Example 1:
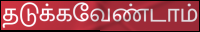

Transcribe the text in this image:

தடுக்கவேண்டாம்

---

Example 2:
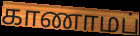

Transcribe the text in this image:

காணாமப்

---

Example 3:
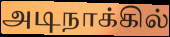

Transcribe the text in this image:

அடிநாக்கில்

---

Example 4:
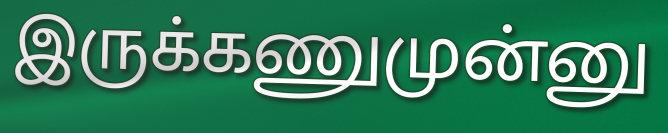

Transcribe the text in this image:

இருக்கணுமுன்னு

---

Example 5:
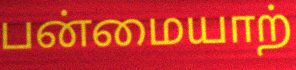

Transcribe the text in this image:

பன்மையாற்